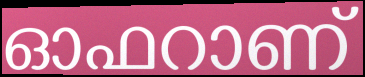
ഓഫറാണ്